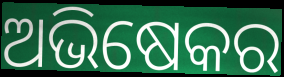
ଅଭିଷେକର